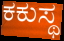
ಕಕುಸ್ಥ